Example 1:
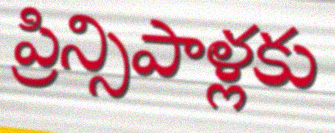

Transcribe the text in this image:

ప్రిన్సిపాళ్లకు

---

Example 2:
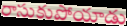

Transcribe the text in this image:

రాసుకుపోయాడు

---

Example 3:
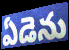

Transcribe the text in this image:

ఏడెను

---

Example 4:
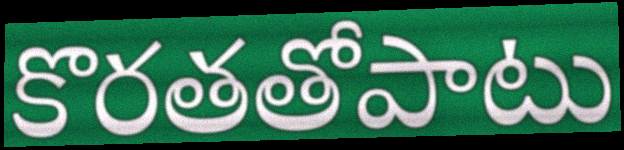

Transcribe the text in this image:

కొరతతోపాటు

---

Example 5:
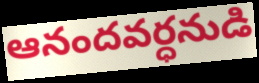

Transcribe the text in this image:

ఆనందవర్ధనుడి